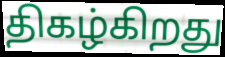
திகழ்கிறது